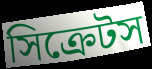
সিক্রেটস